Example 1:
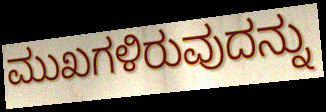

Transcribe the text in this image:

ಮುಖಗಳಿರುವುದನ್ನು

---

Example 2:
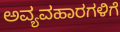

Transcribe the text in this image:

ಅವ್ಯವಹಾರಗಳಿಗೆ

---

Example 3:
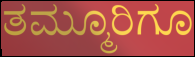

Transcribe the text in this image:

ತಮ್ಮೂರಿಗೂ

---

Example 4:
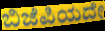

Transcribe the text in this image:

ಬಿಜೆಪಿಯದೇ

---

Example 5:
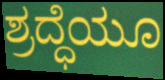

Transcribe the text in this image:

ಶ್ರದ್ಧೆಯೂ